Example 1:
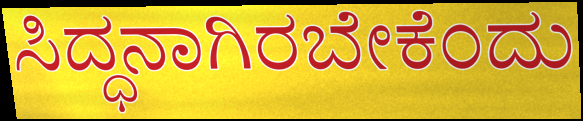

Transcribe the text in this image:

ಸಿದ್ಧನಾಗಿರಬೇಕೆಂದು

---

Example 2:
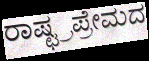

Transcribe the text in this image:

ರಾಷ್ಟ್ರಪ್ರೇಮದ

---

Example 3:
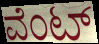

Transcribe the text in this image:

ವೆಂಟ್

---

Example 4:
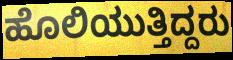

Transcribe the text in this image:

ಹೊಲಿಯುತ್ತಿದ್ದರು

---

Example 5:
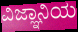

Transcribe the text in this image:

ವಿಜ್ಞಾನಿಯ